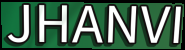
JHANVI